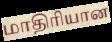
மாதிரியான